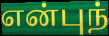
என்புந்